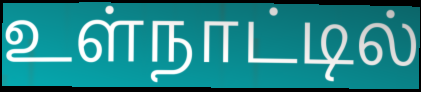
உள்நாட்டில்